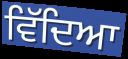
ਵਿੱਦਿਆ